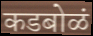
कडबोळं